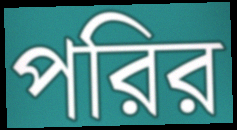
পরির